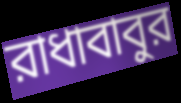
রাধাবাবুর